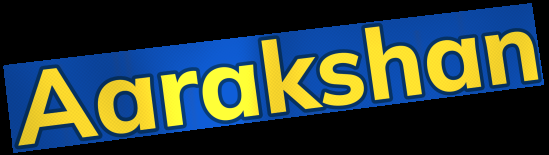
Aarakshan